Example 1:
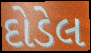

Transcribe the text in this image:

દોડેલ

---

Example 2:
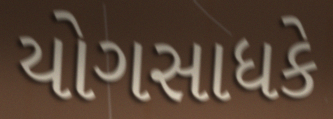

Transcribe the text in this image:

યોગસાધકે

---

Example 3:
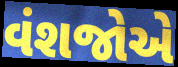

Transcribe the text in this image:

વંશજોએ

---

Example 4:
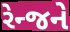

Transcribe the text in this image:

રેન્જને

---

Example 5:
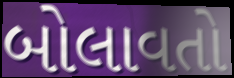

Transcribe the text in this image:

બોલાવતો